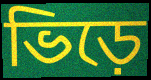
ভিড়ে